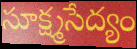
సూక్ష్మసేద్యం